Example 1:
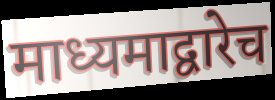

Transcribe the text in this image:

माध्यमाद्वारेच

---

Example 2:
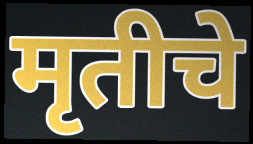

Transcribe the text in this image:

मृतीचे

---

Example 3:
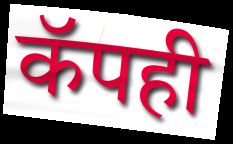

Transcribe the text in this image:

कॅपही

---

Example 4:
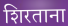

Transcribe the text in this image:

शिरताना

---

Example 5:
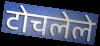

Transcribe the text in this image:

टोचलेले